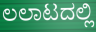
ಲಲಾಟದಲ್ಲಿ